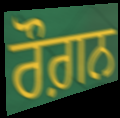
ਰੌਗ਼ਨ